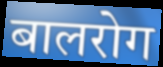
बालरोग